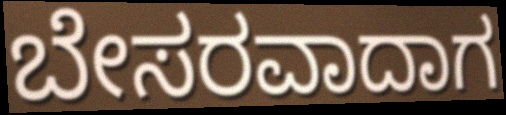
ಬೇಸರವಾದಾಗ